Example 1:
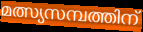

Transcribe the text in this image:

മത്സ്യസമ്പത്തിന്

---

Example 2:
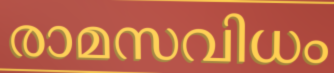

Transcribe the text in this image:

രാമസവിധം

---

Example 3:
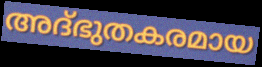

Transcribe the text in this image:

അദ്ഭുതകരമായ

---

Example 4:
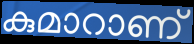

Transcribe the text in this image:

കുമാറാണ്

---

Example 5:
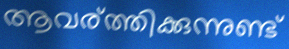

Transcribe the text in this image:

ആവര്ത്തിക്കുന്നുണ്ട്